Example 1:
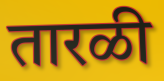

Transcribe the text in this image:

तारळी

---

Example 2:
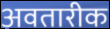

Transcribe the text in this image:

अवतारीक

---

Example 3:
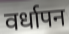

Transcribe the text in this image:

वर्धापन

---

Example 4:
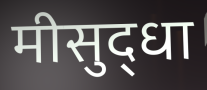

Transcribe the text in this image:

मीसुद्धा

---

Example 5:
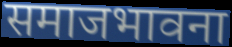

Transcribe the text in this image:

समाजभावना